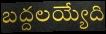
బద్దలయ్యేది